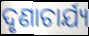
ଦୃଣାଚାର୍ଯ୍ୟ